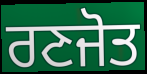
ਰਣਜੋਤ